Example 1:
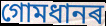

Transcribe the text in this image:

গোমধানৰ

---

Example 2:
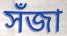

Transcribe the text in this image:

সঁজা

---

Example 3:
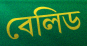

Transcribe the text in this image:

বেলিড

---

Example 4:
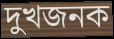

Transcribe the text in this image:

দুখজনক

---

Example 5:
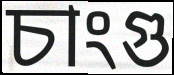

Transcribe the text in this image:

চাংগু